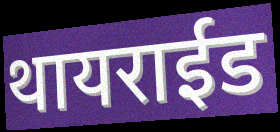
थायराईड